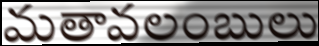
మతావలంబులు